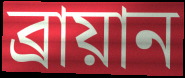
ব্রায়ান